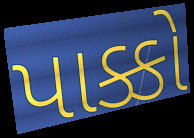
પાક્કો